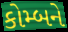
કોમ્બને